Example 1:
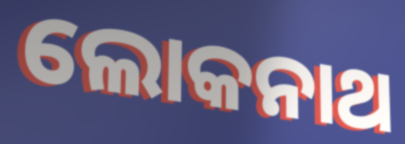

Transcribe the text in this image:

ଲୋକନାଥ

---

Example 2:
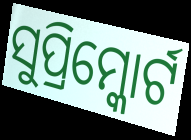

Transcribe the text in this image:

ସୁପ୍ରିମ୍କୋର୍ଟ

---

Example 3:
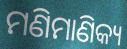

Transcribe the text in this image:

ମଣିମାଣିକ୍ୟ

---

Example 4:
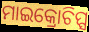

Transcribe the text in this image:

ମାଇକ୍ରୋଚିପ୍ସ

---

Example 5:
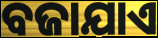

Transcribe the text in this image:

ବଜାଯାଏ